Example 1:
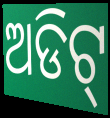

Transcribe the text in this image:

ଅଡିଟ୍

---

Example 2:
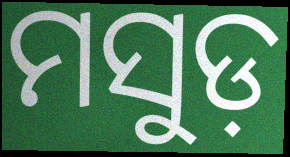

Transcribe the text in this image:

ମସୁଡ଼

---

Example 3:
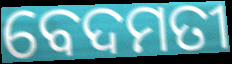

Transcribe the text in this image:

ବେଦମତୀ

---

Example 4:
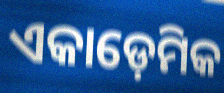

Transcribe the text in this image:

ଏକାଡ଼େମିକ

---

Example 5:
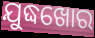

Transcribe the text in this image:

ଯୁଦ୍ଧଖୋର